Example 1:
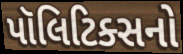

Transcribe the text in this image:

પૉલિટિક્સનો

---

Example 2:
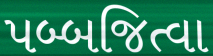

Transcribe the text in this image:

પબ્બજિત્વા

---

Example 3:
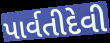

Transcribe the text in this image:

પાર્વતીદેવી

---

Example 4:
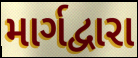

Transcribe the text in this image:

માર્ગદ્વારા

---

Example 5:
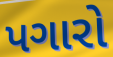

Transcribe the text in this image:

પગારો